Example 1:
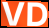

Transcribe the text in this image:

VD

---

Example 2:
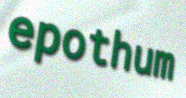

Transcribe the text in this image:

epothum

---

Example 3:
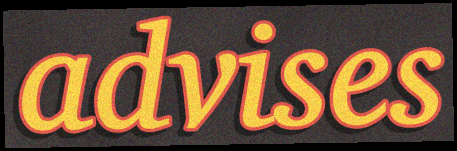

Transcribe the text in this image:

advises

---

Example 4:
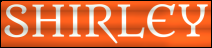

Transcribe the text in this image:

SHIRLEY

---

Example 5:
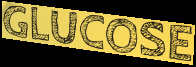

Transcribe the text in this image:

GLUCOSE